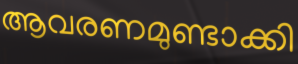
ആവരണമുണ്ടാക്കി